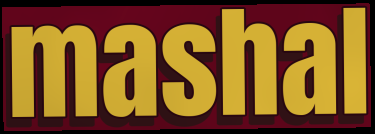
mashal